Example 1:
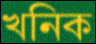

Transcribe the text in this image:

খনিক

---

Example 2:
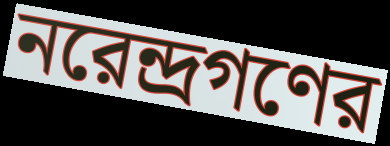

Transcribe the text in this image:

নরেন্দ্রগণের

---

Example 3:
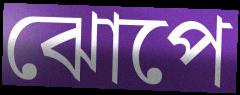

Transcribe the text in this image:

ঝোপে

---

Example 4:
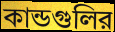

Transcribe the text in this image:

কান্ডগুলির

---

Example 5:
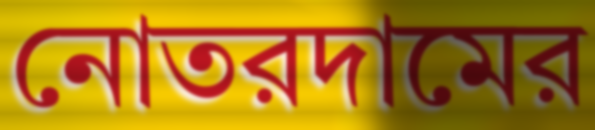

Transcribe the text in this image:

নোতরদামের